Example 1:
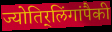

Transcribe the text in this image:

ज्योतिर्लिंगांपैकी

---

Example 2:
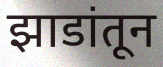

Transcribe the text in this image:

झाडांतून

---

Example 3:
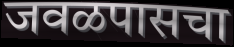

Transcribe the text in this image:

जवळपासचा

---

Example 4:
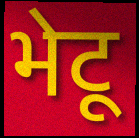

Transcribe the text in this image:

भेटू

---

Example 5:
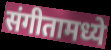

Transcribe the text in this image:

संगीतामध्ये